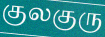
குலகுரு